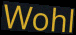
Wohl